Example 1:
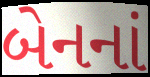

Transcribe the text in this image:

બેનનાં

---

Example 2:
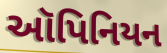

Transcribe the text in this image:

ઑપિનિયન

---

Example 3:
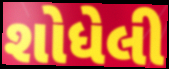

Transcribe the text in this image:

શોધેલી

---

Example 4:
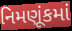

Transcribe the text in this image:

નિમણૂંકમાં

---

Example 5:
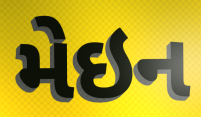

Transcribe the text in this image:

મેઇન